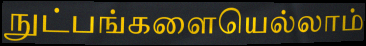
நுட்பங்களையெல்லாம்